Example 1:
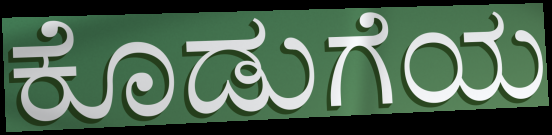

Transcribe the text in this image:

ಕೊಡುಗೆಯ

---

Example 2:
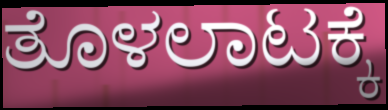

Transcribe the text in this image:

ತೊಳಲಾಟಕ್ಕೆ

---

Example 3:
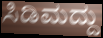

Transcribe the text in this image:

ಸಿಡಿಮದ್ದು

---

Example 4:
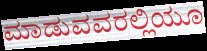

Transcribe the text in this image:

ಮಾಡುವವರಲ್ಲಿಯೂ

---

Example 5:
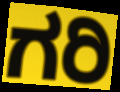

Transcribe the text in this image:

ಗರಿ